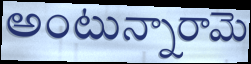
అంటున్నారామె